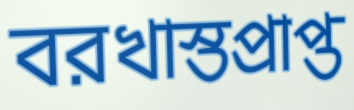
বরখাস্তপ্রাপ্ত